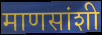
माणसांशी